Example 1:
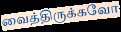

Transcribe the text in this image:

வைத்திருக்கவோ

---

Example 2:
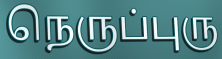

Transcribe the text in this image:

நெருப்புரு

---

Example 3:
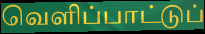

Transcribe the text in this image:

வெளிப்பாட்டுப்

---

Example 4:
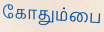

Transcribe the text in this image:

கோதும்பை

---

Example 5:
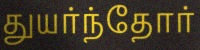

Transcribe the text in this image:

துயர்ந்தோர்